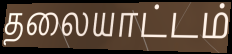
தலையாட்டம்